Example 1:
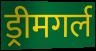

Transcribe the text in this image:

ड्रीमगर्ल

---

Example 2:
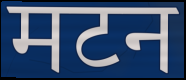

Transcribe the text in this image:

मटन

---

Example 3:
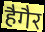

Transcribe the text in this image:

हैगैर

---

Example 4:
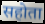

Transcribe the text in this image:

सहोता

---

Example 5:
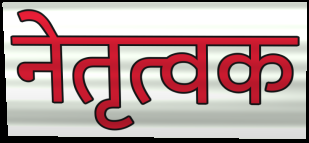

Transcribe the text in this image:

नेतृत्वक